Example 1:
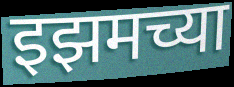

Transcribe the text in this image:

इझमच्या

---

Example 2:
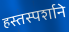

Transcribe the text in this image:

हस्तस्पर्शाने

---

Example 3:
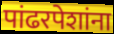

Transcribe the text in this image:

पांढरपेशांना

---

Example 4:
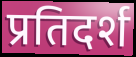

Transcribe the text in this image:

प्रतिदर्श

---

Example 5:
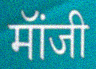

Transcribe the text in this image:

मॉंजी